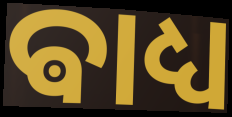
ଵାଧ୍ୟ